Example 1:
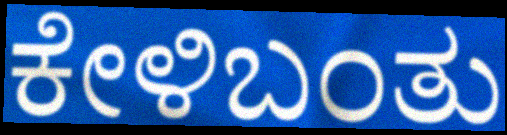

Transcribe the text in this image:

ಕೇಳಿಬಂತು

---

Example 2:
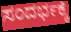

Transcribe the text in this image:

ಸಂದರ್ಭಕ್ಕೆ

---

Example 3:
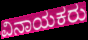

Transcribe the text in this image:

ವಿನಾಯಕರು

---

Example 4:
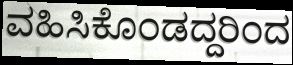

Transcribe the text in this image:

ವಹಿಸಿಕೊಂಡದ್ದರಿಂದ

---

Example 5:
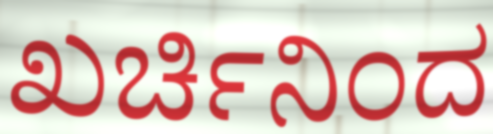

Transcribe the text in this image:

ಖರ್ಚಿನಿಂದ